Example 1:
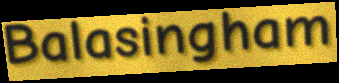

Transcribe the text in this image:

Balasingham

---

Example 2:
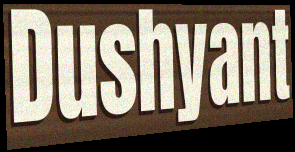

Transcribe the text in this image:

Dushyant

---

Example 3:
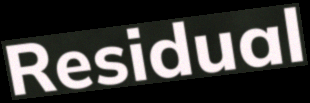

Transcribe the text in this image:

Residual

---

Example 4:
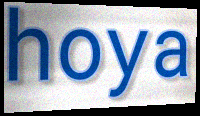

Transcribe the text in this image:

hoya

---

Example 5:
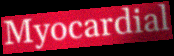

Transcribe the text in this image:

Myocardial